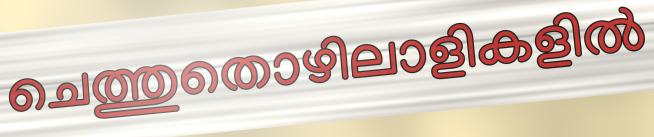
ചെത്തുതൊഴിലാളികളിൽ